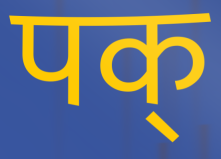
पक्